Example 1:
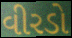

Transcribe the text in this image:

વીરડો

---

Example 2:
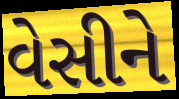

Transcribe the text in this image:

વેસીને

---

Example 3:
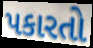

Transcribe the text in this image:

પકારતો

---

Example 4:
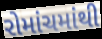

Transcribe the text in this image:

રોમાંચમાંથી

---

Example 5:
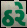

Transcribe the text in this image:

ઠરે